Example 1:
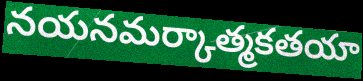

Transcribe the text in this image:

నయనమర్కాత్మకతయా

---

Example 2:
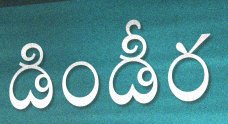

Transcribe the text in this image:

డిండీర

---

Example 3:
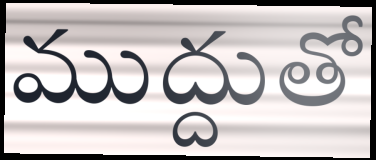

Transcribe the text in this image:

ముద్దుతో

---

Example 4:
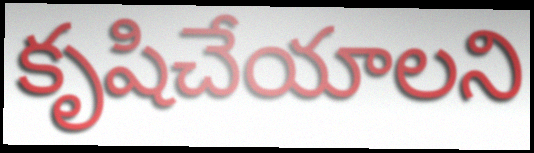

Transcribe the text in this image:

కృషిచేయాలని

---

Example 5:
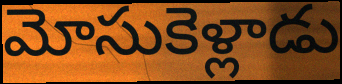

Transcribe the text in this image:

మోసుకెళ్లాడు